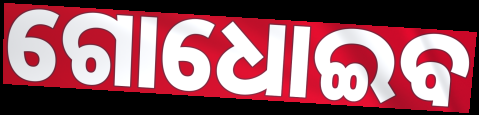
ଗୋଧୋଇବ